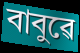
বাবুৱে